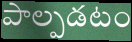
పాల్పడటం